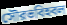
সৌরভবিহবল